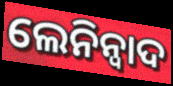
ଲେନିନ୍ବାଦ